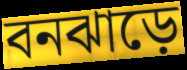
বনঝাড়ে